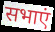
सभाएं